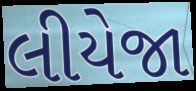
લીયેજા